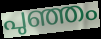
പുഞ്ഞം